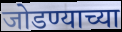
जोडण्याच्या